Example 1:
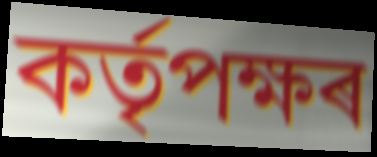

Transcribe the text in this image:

কৰ্তৃপক্ষৰ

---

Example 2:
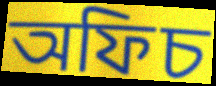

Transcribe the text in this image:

অফিচ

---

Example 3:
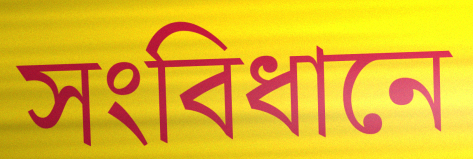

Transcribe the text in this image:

সংবিধানে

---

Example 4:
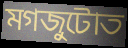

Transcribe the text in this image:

মগজুটোত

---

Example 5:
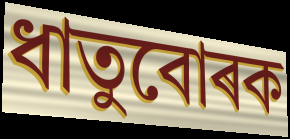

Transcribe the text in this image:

ধাতুবোৰক